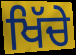
ਖਿੱਚੇ